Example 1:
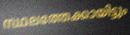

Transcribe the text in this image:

സ്ഥലത്തേക്കായിട്ടും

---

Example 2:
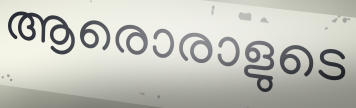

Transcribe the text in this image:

ആരൊരാളുടെ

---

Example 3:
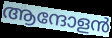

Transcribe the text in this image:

ആന്ദോളൻ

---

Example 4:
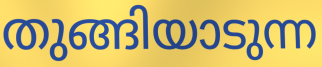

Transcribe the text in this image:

തുങ്ങിയാടുന്ന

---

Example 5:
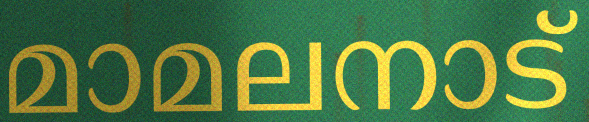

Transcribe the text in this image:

മാമലനാട്